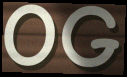
OG